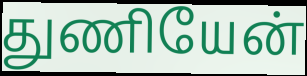
துணியேன்